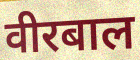
वीरबाल